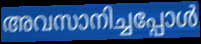
അവസാനിച്ചപ്പോൾ